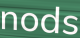
nods